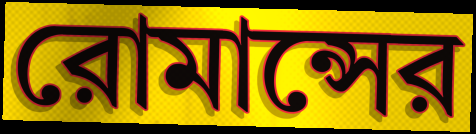
রোমান্সের